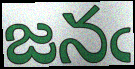
జనఁ